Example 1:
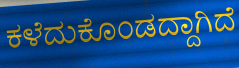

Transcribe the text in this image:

ಕಳೆದುಕೊಂಡದ್ದಾಗಿದೆ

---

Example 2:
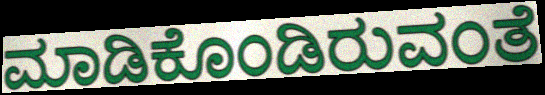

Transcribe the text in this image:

ಮಾಡಿಕೊಂಡಿರುವಂತೆ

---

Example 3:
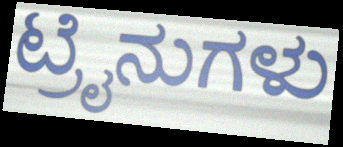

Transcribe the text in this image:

ಟ್ರೈನುಗಳು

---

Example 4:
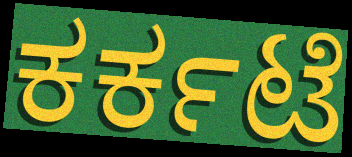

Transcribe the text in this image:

ಕರ್ಕಟೆ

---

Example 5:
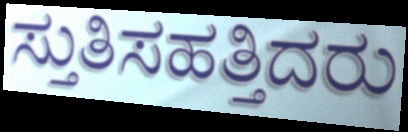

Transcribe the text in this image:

ಸ್ತುತಿಸಹತ್ತಿದರು